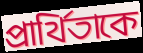
প্রার্থিতাকে